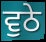
ਵੁਠੇ